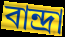
বান্দ্রা